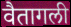
वैतागली